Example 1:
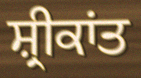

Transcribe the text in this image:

ਸ਼੍ਰੀਕਾਂਤ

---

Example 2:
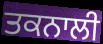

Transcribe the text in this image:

ਤਕਨਾਲੀ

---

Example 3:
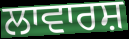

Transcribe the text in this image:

ਲਾਵਾਰਸ਼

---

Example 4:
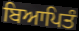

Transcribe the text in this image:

ਬਿਆਪਿਤੰ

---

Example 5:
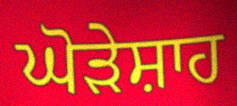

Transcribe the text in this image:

ਘੋੜੇਸ਼ਾਹ